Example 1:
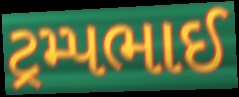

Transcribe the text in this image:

ટ્રમ્પભાઈ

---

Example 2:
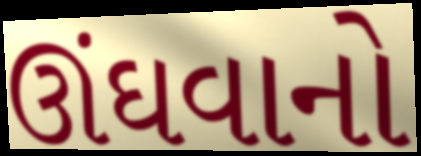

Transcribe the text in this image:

ઊંઘવાનો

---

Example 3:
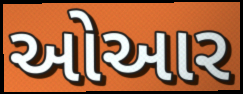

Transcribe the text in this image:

ઓઆર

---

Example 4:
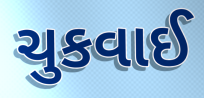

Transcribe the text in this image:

ચુકવાઈ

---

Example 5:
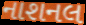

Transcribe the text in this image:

નાશનલ